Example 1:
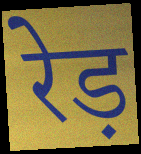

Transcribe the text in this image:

रेड़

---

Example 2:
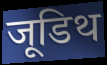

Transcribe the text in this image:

जूडिथ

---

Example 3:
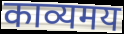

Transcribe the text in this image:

काव्यमय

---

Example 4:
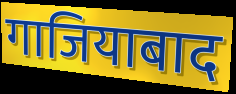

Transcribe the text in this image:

गाजियाबाद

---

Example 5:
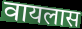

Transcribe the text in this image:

वायलास